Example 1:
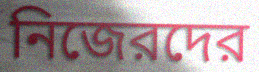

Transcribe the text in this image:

নিজেরদের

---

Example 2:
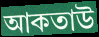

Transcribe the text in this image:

আকতাউ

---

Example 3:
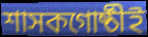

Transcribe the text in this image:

শাসকগোষ্ঠীই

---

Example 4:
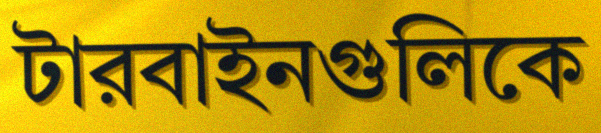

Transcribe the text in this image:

টারবাইনগুলিকে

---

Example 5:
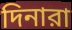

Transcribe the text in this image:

দিনারা